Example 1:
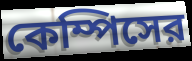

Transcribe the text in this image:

কেম্পিসের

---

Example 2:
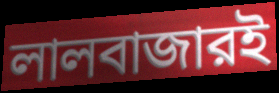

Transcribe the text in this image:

লালবাজারই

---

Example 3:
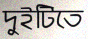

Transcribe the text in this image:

দুইটিতে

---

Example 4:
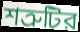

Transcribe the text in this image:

শত্রুটির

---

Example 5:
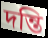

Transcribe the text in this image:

দন্তি